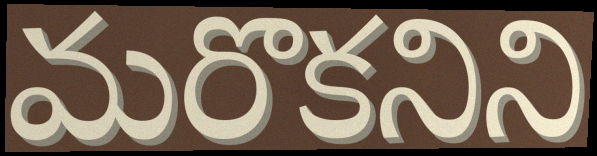
మరొకనిని